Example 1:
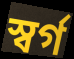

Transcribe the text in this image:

স্বৰ্গ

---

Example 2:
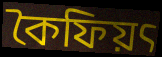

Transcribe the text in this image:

কৈফিয়ৎ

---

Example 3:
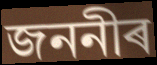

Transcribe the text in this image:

জননীৰ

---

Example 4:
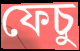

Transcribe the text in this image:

ফেচু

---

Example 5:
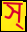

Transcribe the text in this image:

স্